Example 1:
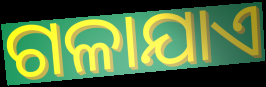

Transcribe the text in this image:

ଗଳାଯାଏ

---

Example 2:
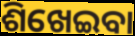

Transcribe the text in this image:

ଶିଖେଇବା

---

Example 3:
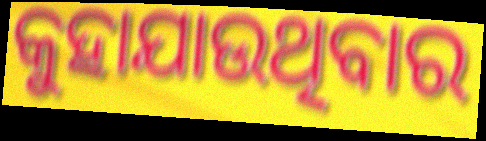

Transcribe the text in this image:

କୁହାଯାଉଥିବାର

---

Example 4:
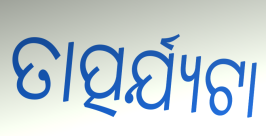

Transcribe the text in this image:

ତାତ୍ପର୍ଯ୍ୟଟା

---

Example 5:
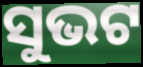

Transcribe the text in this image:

ସୁଭଟ